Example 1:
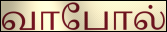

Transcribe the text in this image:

வாபோல்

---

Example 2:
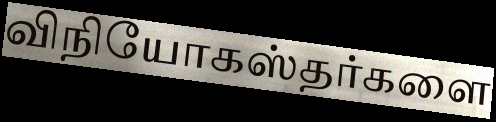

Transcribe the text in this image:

விநியோகஸ்தர்களை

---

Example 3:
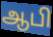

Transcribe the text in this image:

ஆபி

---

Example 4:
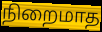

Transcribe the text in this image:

நிறைமாத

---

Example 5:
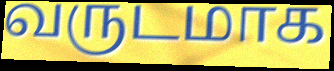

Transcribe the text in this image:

வருடமாக